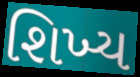
શિખ્ય